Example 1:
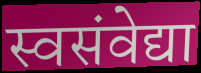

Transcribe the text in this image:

स्वसंवेद्या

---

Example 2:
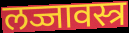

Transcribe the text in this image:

लज्जावस्त्र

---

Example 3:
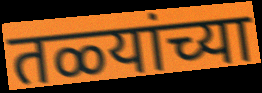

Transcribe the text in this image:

तळ्यांच्या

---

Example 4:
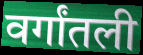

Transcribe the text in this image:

वर्गांतली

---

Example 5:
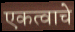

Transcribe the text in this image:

एकत्वाचे